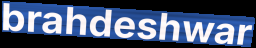
brahdeshwar